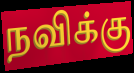
நவிக்கு